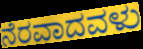
ನೆರವಾದವಳು